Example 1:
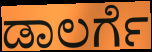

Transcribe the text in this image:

ಡಾಲರ್ಗೆ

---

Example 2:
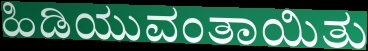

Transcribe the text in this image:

ಹಿಡಿಯುವಂತಾಯಿತು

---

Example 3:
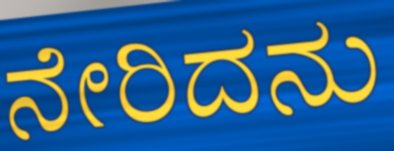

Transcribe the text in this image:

ನೇರಿದನು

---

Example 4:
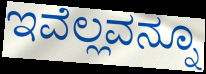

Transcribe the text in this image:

ಇವೆಲ್ಲವನ್ನೂ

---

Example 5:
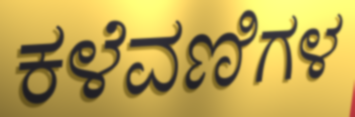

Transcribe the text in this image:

ಕಳೆವಣಿಗಳ